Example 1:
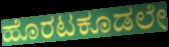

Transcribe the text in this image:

ಹೊರಟಕೂಡಲೇ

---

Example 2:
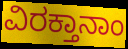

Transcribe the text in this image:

ವಿರಕ್ತಾನಾಂ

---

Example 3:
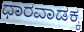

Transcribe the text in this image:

ಧಾರವಾಡಕ್ಕ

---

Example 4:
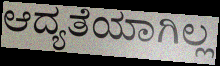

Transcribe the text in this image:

ಆದ್ಯತೆಯಾಗಿಲ್ಲ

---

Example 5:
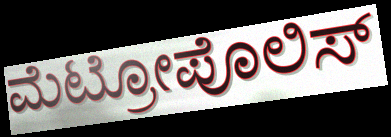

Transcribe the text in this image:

ಮೆಟ್ರೋಪೊಲಿಸ್